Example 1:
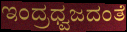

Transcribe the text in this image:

ಇಂದ್ರಧ್ವಜದಂತೆ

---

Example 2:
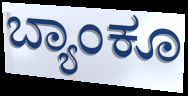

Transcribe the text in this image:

ಬ್ಯಾಂಕೂ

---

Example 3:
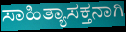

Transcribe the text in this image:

ಸಾಹಿತ್ಯಾಸಕ್ತನಾಗಿ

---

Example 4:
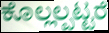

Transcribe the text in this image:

ಕೊಲ್ಲಲ್ಪಟ್ಟರೆ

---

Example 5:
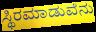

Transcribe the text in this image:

ಸ್ಥಿರಮಾಡುವೆನು